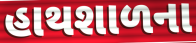
હાથશાળના